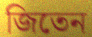
জিতেন